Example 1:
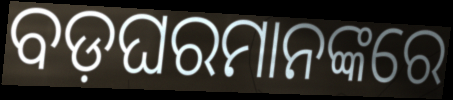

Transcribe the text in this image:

ବଡ଼ଘରମାନଙ୍କରେ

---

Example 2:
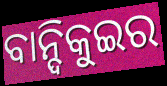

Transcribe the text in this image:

ବାନ୍ଦିକୁଇର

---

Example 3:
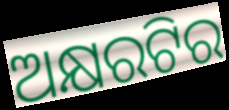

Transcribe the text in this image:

ଅକ୍ଷରଟିର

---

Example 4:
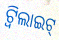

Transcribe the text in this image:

ଟ୍ୱିଲାଇଟ୍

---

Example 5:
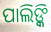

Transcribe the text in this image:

ପାଲିଙ୍କି